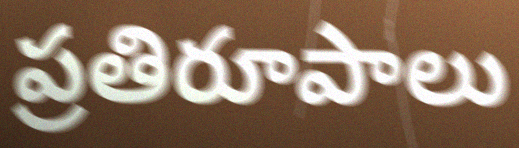
ప్రతిరూపాలు